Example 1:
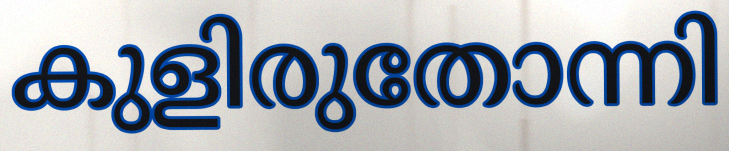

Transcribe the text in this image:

കുളിരുതോന്നി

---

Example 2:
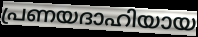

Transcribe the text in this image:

പ്രണയദാഹിയായ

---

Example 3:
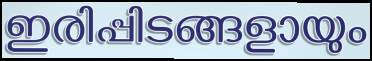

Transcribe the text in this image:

ഇരിപ്പിടങ്ങളായും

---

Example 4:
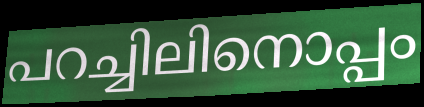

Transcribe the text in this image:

പറച്ചിലിനൊപ്പം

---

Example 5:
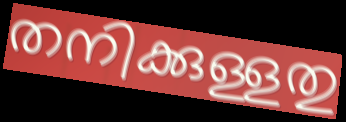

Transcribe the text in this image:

തനിക്കുള്ളതു